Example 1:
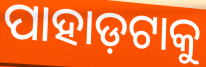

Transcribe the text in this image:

ପାହାଡ଼ଟାକୁ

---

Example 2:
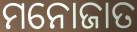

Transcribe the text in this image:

ମନୋଜାତ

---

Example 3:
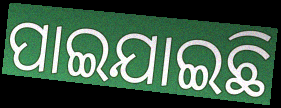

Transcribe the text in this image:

ପାଇଯାଇଛି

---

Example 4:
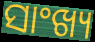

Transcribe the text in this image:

ସାଂଖ୍ଯ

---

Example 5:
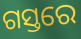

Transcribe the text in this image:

ଗସ୍ତରେ